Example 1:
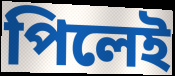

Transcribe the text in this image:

পিলেই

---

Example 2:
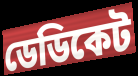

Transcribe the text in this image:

ডেডিকেট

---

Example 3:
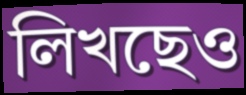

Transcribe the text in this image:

লিখছেও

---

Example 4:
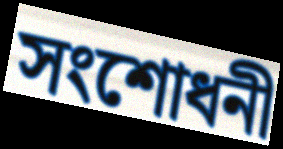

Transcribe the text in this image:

সংশোধনী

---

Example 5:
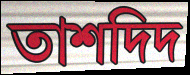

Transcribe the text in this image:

তাশদিদ